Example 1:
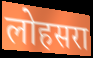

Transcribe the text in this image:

लोहसरा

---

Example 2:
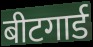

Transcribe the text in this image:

बीटगार्ड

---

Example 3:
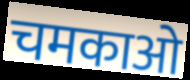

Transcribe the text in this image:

चमकाओ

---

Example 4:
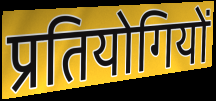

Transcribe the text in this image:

प्रतियोगियों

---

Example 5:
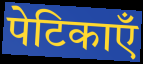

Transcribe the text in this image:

पेटिकाएँ